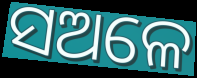
ସଅଳେ